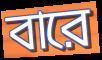
বারে